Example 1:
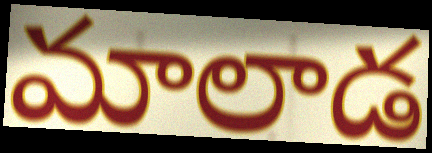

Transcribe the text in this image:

మాలాడ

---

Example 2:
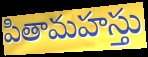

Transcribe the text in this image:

పితామహస్తు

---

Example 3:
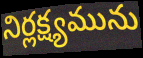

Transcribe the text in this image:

నిర్లక్ష్యమును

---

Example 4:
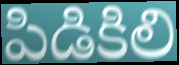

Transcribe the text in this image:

పిడికిలి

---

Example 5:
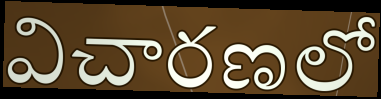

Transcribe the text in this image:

విచారణలో